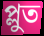
প্লুত